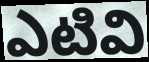
ఎటివి